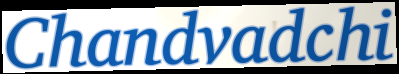
Chandvadchi